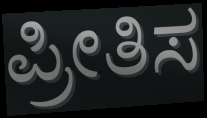
ಪ್ರೀತಿಸ